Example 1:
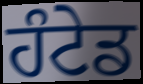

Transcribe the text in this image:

ਹੰਟੇਡ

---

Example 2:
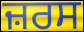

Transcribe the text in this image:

ਜ਼ਰਸ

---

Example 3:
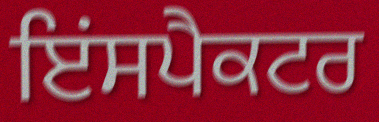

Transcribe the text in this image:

ਇਂਸਪੈਕਟਰ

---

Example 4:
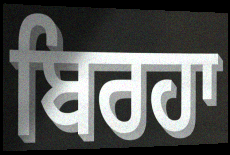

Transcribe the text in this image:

ਬਿਰਹਾ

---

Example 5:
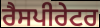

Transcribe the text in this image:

ਰੈਸਪੀਰੇਟਰ